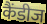
कैंडीज